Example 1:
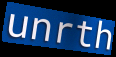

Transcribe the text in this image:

unrth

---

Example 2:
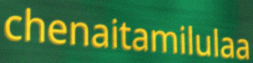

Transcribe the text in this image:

chenaitamilulaa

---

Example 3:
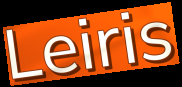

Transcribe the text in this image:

Leiris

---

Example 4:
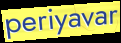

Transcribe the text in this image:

periyavar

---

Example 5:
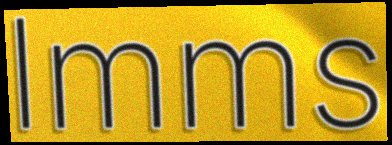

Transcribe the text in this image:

Imms